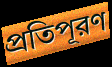
প্রতিপূরণ